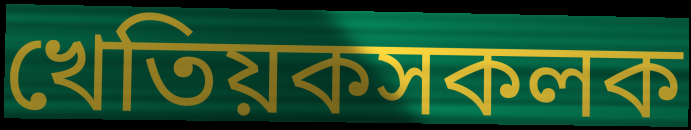
খেতিয়কসকলক